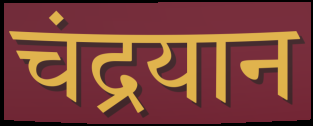
चंद्रयान